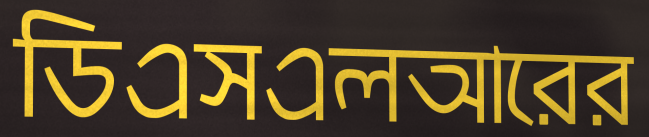
ডিএসএলআরের